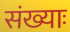
संख्याः